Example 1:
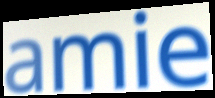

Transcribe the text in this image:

amie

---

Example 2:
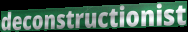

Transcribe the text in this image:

deconstructionist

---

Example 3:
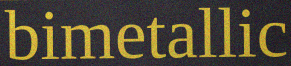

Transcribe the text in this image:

bimetallic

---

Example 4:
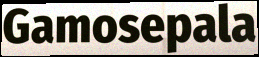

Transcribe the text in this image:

Gamosepala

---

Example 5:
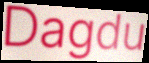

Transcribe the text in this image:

Dagdu